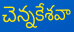
చెన్నకేశవా